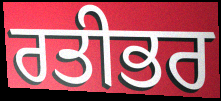
ਰਤੀਭਰ